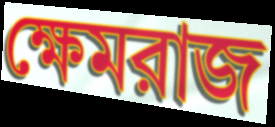
ক্ষেমরাজ